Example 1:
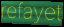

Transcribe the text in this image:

refayet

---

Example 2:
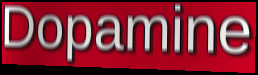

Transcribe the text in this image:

Dopamine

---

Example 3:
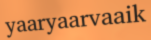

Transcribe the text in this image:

yaaryaarvaaik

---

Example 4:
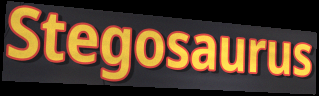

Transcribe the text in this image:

Stegosaurus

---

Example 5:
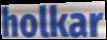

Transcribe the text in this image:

holkar